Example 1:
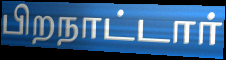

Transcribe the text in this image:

பிறநாட்டார்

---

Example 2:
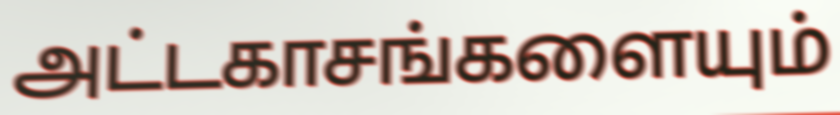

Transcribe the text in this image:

அட்டகாசங்களையும்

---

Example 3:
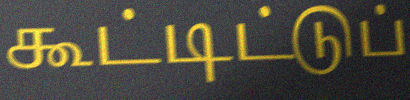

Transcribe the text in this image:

கூட்டிட்டுப்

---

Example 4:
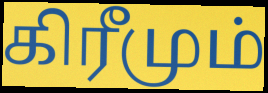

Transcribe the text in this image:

கிரீமும்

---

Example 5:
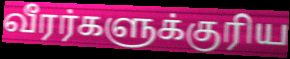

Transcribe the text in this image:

வீரர்களுக்குரிய